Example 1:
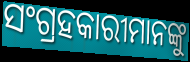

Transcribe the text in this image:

ସଂଗ୍ରହକାରୀମାନଙ୍କୁ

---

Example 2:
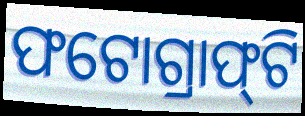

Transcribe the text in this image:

ଫଟୋଗ୍ରାଫ୍‌ଟି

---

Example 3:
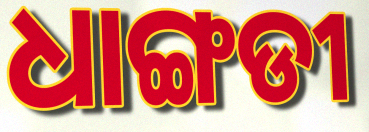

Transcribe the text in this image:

ଧାଙ୍ଗଡୀ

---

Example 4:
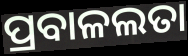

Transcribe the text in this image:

ପ୍ରବାଳଲତା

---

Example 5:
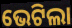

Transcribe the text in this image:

ଭେଟିଲା